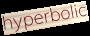
hyperbolic